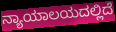
ನ್ಯಾಯಾಲಯದಲ್ಲಿದೆ